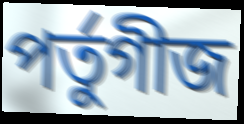
পৰ্তুগীজ